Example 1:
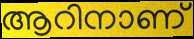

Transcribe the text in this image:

ആറിനാണ്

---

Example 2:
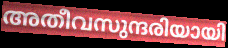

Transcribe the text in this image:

അതീവസുന്ദരിയായി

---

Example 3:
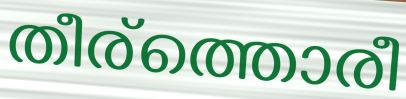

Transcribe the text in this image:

തീര്ത്തൊരീ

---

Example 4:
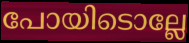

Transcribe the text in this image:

പോയിടൊല്ലേ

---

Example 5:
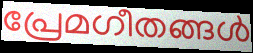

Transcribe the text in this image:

പ്രേമഗീതങ്ങൾ